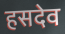
हसदेव